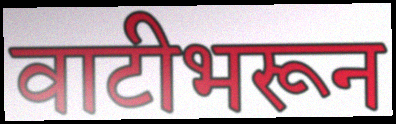
वाटीभरून